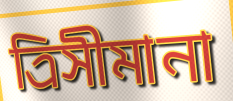
ত্রিসীমানা